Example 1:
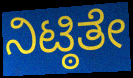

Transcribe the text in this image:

ನಿಟ್ಠಿತೇ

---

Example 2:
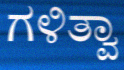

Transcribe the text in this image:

ಗಳಿತ್ವಾ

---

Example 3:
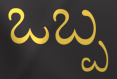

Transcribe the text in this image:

ಒಬ್ಪ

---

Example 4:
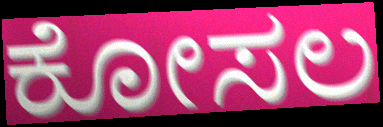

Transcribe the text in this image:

ಕೋಸಲ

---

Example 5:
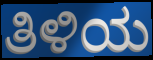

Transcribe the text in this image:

ತಿಳಿಯ